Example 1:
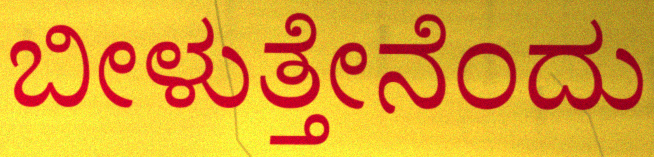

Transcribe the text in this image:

ಬೀಳುತ್ತೇನೆಂದು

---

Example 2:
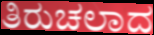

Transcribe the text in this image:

ತಿರುಚಲಾದ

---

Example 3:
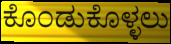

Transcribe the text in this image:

ಕೊಂಡುಕೊಳ್ಳಲು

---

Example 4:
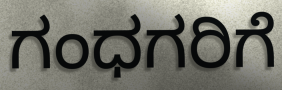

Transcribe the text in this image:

ಗಂಧಗರಿಗೆ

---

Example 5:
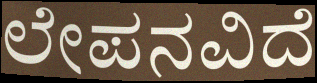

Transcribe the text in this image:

ಲೇಪನವಿದೆ